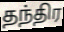
தந்திர